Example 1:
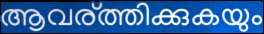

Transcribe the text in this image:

ആവര്ത്തിക്കുകയും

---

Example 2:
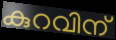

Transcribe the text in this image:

കുറവിന്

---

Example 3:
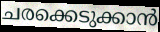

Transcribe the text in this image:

ചരക്കെടുക്കാൻ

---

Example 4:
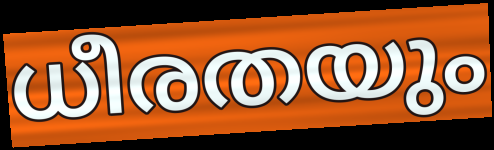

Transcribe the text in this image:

ധീരതയും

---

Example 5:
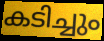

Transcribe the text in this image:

കടിച്ചും